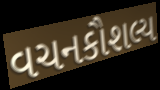
વચનકૌશલ્ય